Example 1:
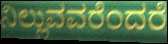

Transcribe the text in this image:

ನಿಲ್ಲುವವರೆಂದರೆ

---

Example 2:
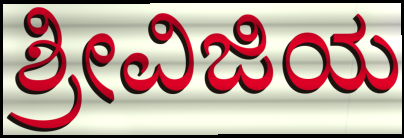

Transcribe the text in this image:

ಶ್ರೀವಿಜಿಯ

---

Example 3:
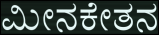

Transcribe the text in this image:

ಮೀನಕೇತನ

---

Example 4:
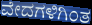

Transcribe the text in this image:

ವೇದಗಳಿಗಿಂತ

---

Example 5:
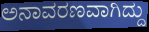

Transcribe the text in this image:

ಅನಾವರಣವಾಗಿದ್ದು